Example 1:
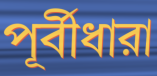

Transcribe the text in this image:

পূর্বীধারা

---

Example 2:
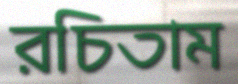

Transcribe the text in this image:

রচিতাম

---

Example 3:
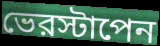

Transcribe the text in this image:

ভেরস্টাপেন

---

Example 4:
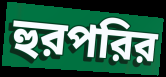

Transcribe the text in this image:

হুরপরির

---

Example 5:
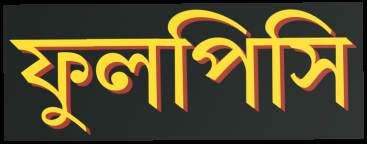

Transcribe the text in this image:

ফুলপিসি